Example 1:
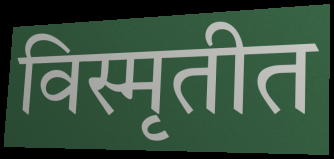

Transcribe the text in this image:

विस्मृतीत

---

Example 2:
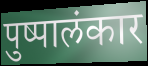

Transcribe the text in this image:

पुष्पालंकार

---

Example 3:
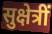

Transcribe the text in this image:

सुक्षेत्रीं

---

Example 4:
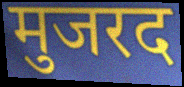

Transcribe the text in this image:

मुजरद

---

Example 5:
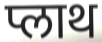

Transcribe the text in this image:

प्लाथ